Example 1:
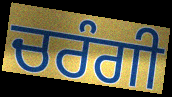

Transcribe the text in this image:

ਚਰੰਗੀ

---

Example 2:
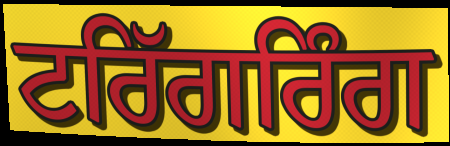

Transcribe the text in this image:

ਟਰਿੱਗਰਿੰਗ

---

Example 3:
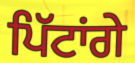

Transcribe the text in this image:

ਪਿੱਟਾਂਗੇ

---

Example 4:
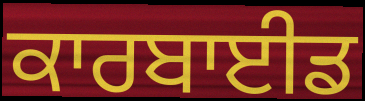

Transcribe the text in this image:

ਕਾਰਬਾਈਡ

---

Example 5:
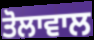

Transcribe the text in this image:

ਤੋਲਾਵਾਲ